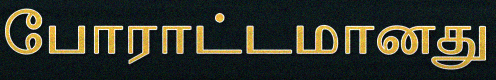
போராட்டமானது